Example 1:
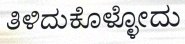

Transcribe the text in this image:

ತಿಳಿದುಕೊಳ್ಳೋದು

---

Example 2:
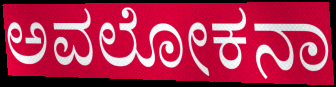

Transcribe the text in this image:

ಅವಲೋಕನಾ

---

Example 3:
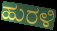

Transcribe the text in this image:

ಹುರಳಿ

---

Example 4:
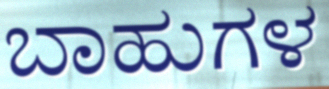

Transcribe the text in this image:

ಬಾಹುಗಳ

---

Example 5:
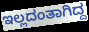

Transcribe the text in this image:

ಇಲ್ಲದಂತಾಗಿದ್ದ